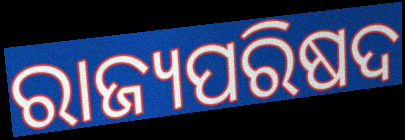
ରାଜ୍ୟପରିଷଦ